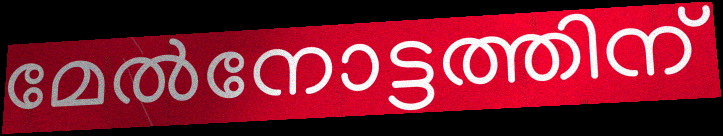
മേൽനോട്ടത്തിന്